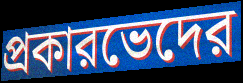
প্রকারভেদের